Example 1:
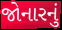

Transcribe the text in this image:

જોનારનું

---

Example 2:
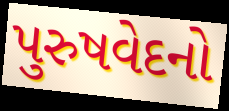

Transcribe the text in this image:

પુરુષવેદનો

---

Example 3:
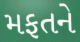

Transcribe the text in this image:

મફતને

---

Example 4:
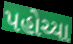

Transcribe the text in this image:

પહોચ્યા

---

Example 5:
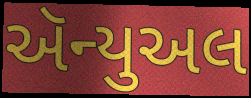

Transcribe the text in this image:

ઍન્યુઅલ